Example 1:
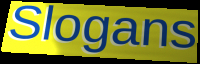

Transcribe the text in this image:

Slogans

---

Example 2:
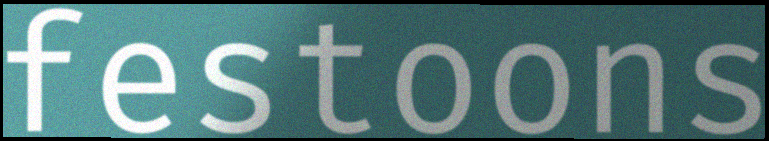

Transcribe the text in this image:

festoons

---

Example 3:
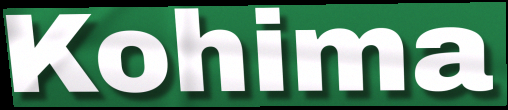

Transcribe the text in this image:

Kohima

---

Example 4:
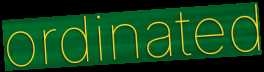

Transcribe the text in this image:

ordinated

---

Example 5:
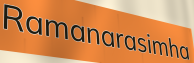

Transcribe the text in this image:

Ramanarasimha